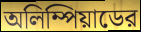
অলিম্পিয়াডের